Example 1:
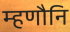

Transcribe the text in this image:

म्हणौनि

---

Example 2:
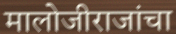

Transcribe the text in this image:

मालोजीराजांचा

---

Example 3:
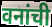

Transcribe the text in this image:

वनांची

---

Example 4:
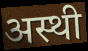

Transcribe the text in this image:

अस्थी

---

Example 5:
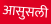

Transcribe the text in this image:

आसुसली